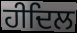
ਹੀਦਿਲ